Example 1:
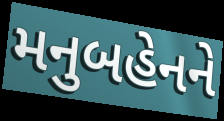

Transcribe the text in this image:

મનુબહેનને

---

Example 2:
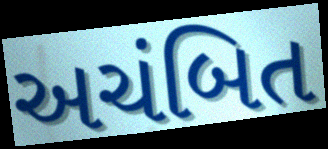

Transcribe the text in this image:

અચંબિત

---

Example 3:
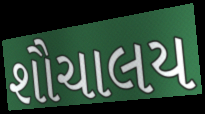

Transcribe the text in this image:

શૌચાલય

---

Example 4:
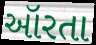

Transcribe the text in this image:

ઑરતા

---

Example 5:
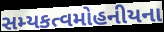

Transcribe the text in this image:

સમ્યકત્વમોહનીયના